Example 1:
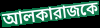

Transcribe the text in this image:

আলকারাজকে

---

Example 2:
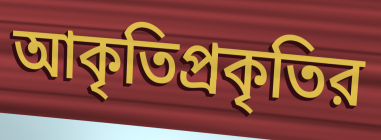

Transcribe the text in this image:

আকৃতিপ্রকৃতির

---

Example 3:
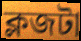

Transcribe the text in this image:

ক্লজটা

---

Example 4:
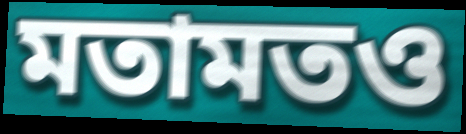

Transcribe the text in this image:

মতামতও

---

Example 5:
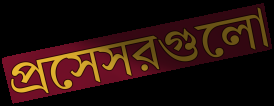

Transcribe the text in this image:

প্রসেসরগুলো